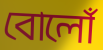
বোলোঁ